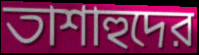
তাশাহুদের